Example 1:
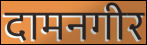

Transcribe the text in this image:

दामनगीर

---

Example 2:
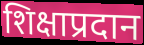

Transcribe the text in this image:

शिक्षाप्रदान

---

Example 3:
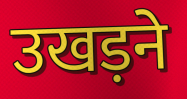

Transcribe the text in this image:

उखड़ने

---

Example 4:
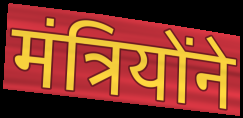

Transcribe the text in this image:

मंत्रियोंने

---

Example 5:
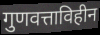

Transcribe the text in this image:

गुणवत्ताविहीन